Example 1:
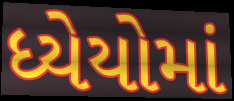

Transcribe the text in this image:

ધ્યેયોમાં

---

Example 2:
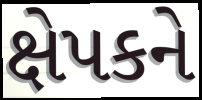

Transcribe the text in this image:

ક્ષેપકને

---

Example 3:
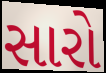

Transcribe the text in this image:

સારો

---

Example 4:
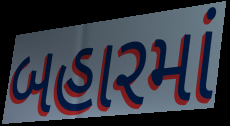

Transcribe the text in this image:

બહારમાં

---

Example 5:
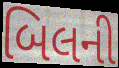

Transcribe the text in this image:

બિલની